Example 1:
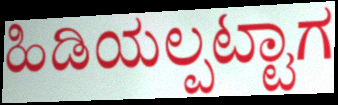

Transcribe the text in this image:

ಹಿಡಿಯಲ್ಪಟ್ಟಾಗ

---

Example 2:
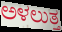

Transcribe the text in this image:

ಅಳಲುತ್ತ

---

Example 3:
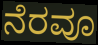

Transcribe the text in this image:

ನೆರವೂ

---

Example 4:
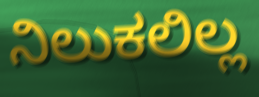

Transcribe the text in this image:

ನಿಲುಕಲಿಲ್ಲ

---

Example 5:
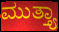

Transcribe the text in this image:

ಮುತ್ತ್ಯಾ